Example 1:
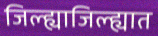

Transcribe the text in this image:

जिल्ह्याजिल्ह्यात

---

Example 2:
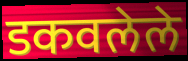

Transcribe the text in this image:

डकवलेले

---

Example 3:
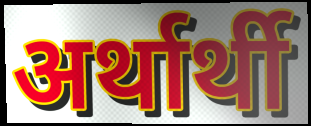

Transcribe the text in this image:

अर्थार्थी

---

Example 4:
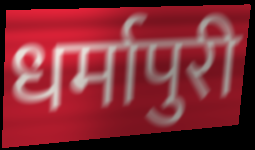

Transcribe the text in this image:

धर्मापुरी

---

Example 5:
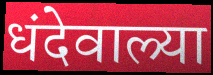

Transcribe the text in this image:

धंदेवाल्या